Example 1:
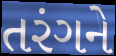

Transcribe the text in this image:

તરંગને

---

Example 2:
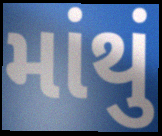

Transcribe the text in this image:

માંથું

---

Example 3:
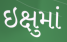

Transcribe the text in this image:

ઇક્ષુમાં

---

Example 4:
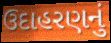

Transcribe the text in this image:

ઉદાહરણનું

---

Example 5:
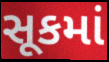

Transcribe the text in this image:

સૂકમાં